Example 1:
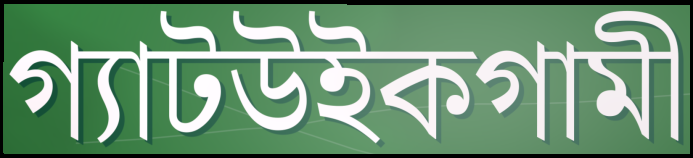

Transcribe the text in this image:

গ্যাটউইকগামী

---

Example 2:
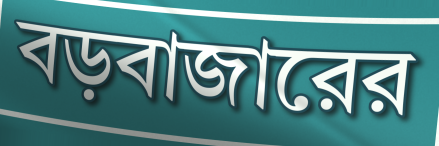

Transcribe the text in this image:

বড়বাজারের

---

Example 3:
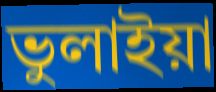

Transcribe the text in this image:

ভুলাইয়া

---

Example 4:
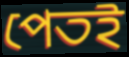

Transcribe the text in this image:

পেতই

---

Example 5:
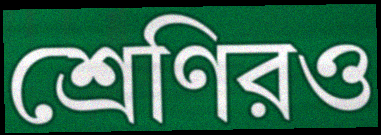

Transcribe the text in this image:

শ্রেণিরও